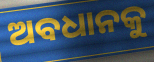
ଅବଧାନକୁ